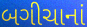
બગીચાનાં